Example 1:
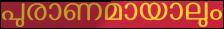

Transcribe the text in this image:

പുരാണമായാലും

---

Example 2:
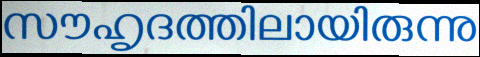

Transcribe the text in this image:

സൗഹൃദത്തിലായിരുന്നു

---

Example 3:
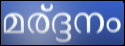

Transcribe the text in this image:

മര്ദ്ദനം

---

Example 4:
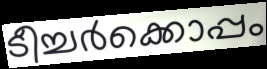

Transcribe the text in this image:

ടീച്ചർക്കൊപ്പം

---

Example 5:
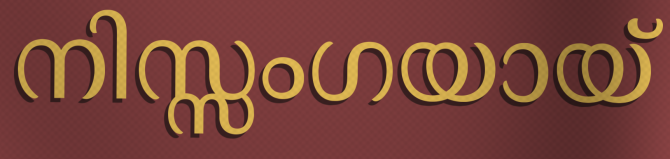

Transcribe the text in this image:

നിസ്സംഗയായ്